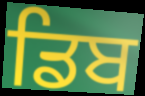
ਡਿਬ